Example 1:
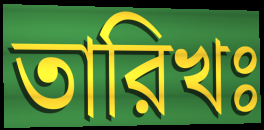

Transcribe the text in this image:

তারিখঃ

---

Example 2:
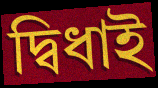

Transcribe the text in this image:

দ্বিধাই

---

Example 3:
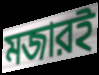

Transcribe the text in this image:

মজারই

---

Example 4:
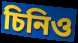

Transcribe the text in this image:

চিনিও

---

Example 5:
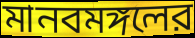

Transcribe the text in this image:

মানবমঙ্গলের